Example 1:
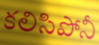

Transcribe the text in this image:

కలిసిపోనీ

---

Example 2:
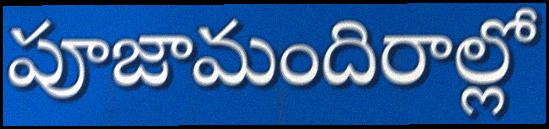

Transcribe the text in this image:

పూజామందిరాల్లో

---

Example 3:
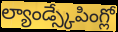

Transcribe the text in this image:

ల్యాండ్స్కేపింగ్లో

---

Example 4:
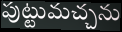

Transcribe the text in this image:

పుట్టుమచ్చను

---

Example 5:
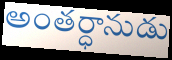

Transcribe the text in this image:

అంతర్ధానుడు